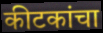
कीटकांचा